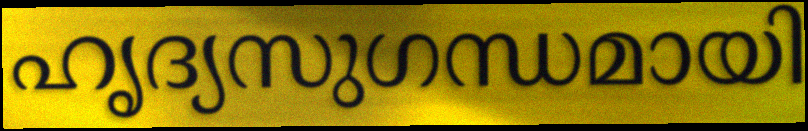
ഹൃദ്യസുഗന്ധമായി